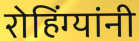
रोहिंग्यांनी